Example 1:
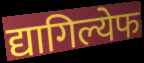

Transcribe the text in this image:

द्यागिल्येफ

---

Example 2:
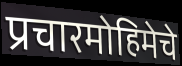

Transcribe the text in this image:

प्रचारमोहिमेचे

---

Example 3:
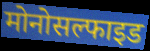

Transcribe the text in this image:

मोनोसल्फाइड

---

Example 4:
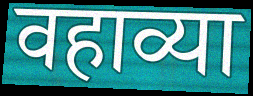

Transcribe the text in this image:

वहाव्या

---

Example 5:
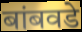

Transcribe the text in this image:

बांबवडे